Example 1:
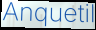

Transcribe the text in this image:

Anquetil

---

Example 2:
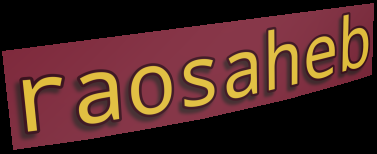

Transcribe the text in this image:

raosaheb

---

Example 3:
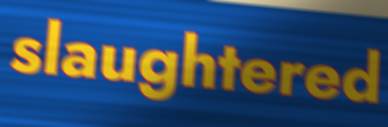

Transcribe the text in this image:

slaughtered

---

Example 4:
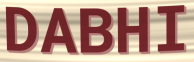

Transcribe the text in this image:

DABHI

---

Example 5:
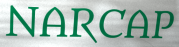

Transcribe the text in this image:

NARCAP